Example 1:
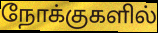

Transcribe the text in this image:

நோக்குகளில்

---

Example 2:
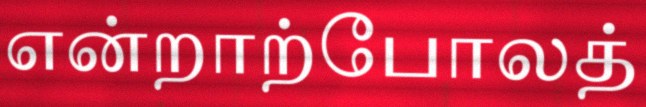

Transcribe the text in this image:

என்றாற்போலத்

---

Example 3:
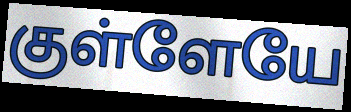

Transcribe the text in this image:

குள்ளேயே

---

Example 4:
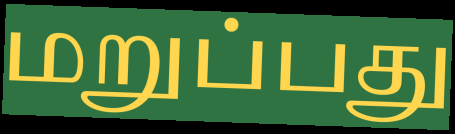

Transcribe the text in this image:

மறுப்பது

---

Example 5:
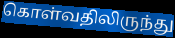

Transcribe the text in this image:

கொள்வதிலிருந்து